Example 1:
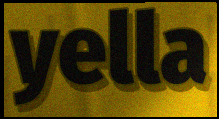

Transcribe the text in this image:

yella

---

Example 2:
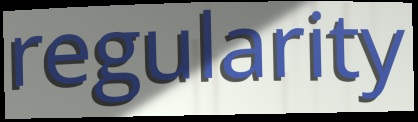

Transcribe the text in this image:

regularity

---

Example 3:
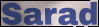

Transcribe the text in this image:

Sarad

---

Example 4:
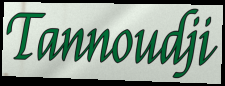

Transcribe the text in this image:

Tannoudji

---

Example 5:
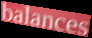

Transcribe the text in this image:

balances